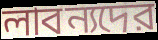
লাবন্যদের